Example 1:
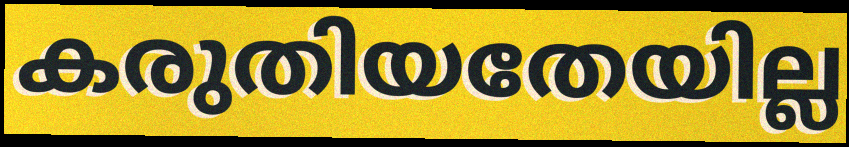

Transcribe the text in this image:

കരുതിയതേയില്ല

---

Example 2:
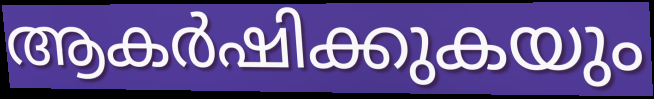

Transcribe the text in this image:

ആകർഷിക്കുകയും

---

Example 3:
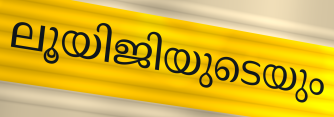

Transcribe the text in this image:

ലൂയിജിയുടെയും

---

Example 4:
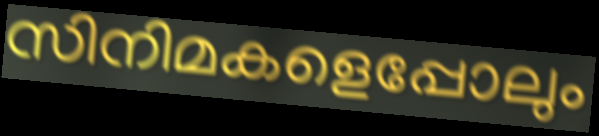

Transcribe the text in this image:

സിനിമകളെപ്പോലും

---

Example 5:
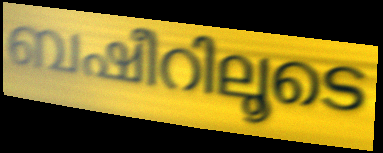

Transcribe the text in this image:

ബഷീറിലൂടെ